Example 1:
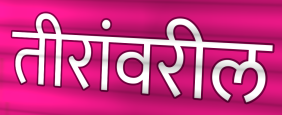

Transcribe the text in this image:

तीरांवरील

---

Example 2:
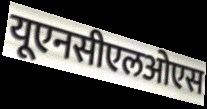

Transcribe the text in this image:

यूएनसीएलओएस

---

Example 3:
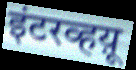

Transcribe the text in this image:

इंटरव्हय़ू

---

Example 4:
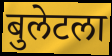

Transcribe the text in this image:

बुलेटला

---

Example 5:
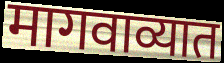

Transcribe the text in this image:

मागवाव्यात